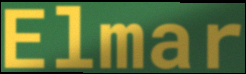
Elmar